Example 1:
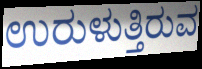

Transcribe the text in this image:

ಉರುಳುತ್ತಿರುವ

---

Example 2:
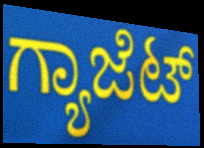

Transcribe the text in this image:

ಗ್ಯಾಜೆಟ್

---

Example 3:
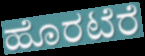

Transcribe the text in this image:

ಹೊರಟೆರೆ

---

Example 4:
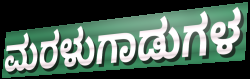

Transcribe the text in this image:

ಮರಳುಗಾಡುಗಳ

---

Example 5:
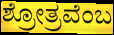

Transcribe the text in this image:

ಶ್ರೋತ್ರವೆಂಬ